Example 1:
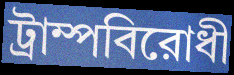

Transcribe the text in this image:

ট্রাম্পবিরোধী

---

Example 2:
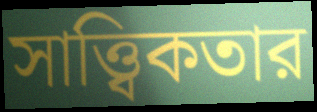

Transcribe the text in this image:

সাত্ত্বিকতার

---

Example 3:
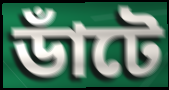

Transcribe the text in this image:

ডাঁটে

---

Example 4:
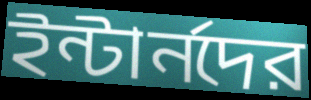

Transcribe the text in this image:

ইন্টার্নদের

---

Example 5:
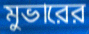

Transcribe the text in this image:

মুভারের